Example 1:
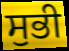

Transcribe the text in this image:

ਸੁਭੀ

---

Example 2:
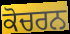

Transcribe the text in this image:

ਕੋਚਰਨ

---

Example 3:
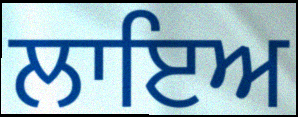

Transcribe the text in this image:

ਲਾਇਅ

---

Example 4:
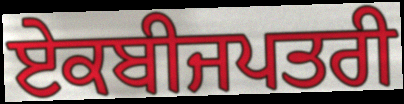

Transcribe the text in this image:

ਏਕਬੀਜਪਤਰੀ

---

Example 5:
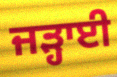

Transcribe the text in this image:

ਜੜ੍ਹਾਈ